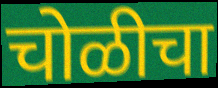
चोळीचा